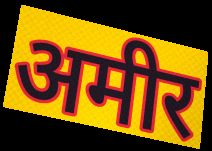
अमीर